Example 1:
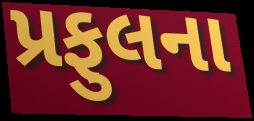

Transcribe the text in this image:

પ્રફુલના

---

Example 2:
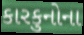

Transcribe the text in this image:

કારકુનોના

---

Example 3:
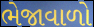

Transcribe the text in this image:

ભેજાવાળો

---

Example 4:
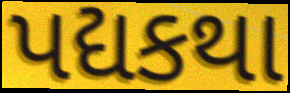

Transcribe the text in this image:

પદ્યકથા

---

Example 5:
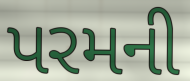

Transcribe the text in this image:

પરમની